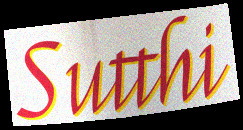
Sutthi